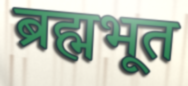
ब्रह्मभूत